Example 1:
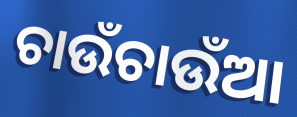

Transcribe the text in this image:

ଚାଉଁଚାଉଁଆ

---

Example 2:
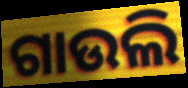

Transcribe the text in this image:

ଗାଉଲି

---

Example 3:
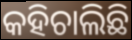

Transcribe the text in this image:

କହିଚାଲିଛି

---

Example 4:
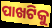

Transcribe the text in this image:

ପାଖଟିକୁ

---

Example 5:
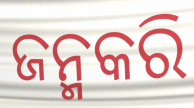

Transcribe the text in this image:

ଜନ୍ମକରି